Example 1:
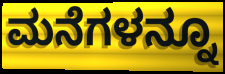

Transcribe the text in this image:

ಮನೆಗಳನ್ನೂ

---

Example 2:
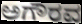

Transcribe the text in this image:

ಅಗೌರವ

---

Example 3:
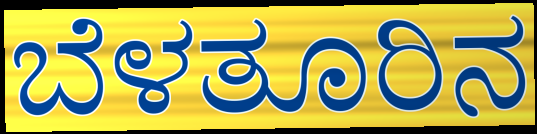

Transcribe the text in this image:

ಬೆಳತೂರಿನ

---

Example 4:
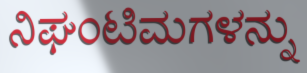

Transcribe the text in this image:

ನಿಘಂಟಿಮಗಳನ್ನು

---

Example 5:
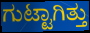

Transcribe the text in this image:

ಗುಟ್ಟಾಗಿತ್ತು